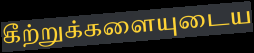
கீற்றுக்களையுடைய